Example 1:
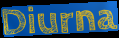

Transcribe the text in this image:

Diurna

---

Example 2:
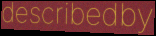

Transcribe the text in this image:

describedby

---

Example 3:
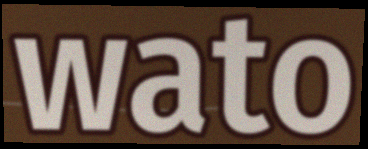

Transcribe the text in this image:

wato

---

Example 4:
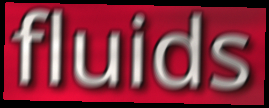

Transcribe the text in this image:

fluids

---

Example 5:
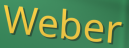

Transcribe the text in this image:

Weber